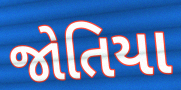
જોતિયા